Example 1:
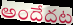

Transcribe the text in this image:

అందేదట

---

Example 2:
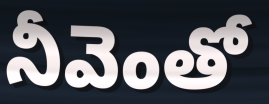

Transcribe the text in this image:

నీవెంతో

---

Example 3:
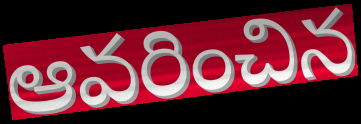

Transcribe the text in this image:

ఆవరించిన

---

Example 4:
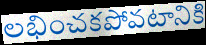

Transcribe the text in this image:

లభించకపోవటానికి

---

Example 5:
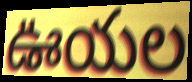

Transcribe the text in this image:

ఊయల